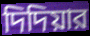
দিদিয়ার